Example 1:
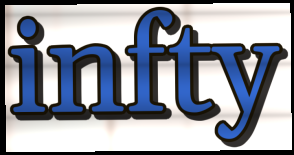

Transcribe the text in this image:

infty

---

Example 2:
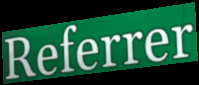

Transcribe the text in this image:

Referrer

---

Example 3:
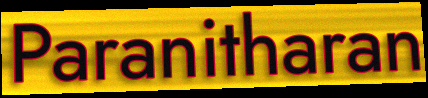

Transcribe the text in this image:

Paranitharan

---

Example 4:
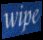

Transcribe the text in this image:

wipe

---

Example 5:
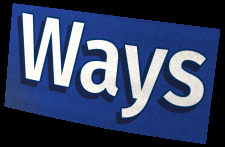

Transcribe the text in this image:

Ways